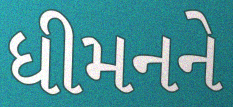
ધીમનને